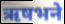
ऋषभने